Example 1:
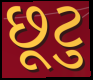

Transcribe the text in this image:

છૂટુ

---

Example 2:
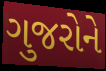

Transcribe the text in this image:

ગુજરોને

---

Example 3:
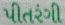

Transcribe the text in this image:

પીતરંગી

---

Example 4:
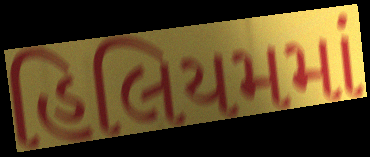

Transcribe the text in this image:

હિલિયમમાં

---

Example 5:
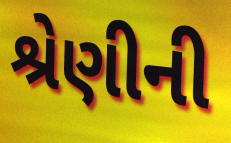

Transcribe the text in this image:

શ્રેણીની